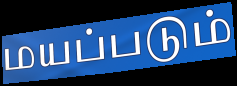
மயப்படும்